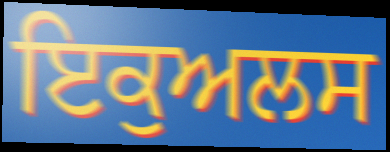
ਇਕੁਅਲਸ